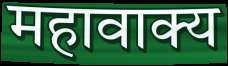
महावाक्य